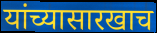
यांच्यासारखाच